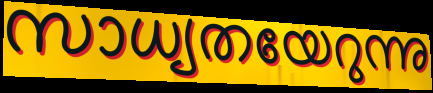
സാധ്യതയേറുന്നു